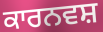
ਕਾਰਨਵਸ਼